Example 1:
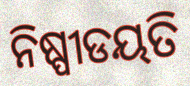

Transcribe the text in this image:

ନିଷ୍ପୀଡୟତି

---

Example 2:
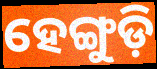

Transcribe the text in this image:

ହେଙ୍ଗୁଡ଼ି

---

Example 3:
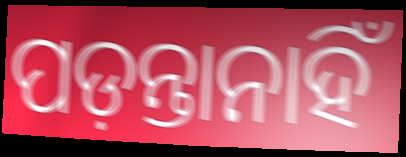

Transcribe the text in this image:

ପଡ଼ନ୍ତାନାହିଁ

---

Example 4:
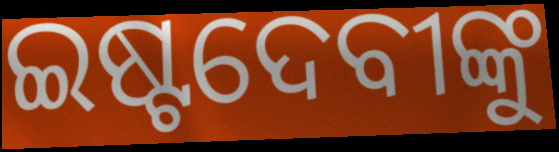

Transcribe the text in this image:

ଇଷ୍ଟଦେବୀଙ୍କୁ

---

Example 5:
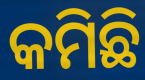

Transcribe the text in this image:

କମିଛି